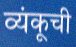
व्यंकूची